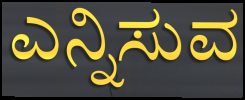
ಎನ್ನಿಸುವ